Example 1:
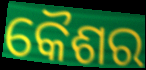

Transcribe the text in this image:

କୈଶର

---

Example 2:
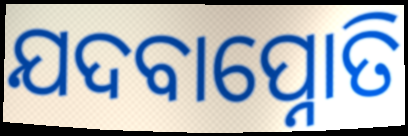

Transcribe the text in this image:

ଯଦବାପ୍ନୋତି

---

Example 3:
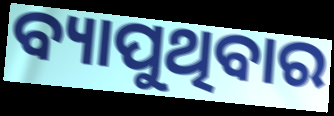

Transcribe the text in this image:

ବ୍ୟାପୁଥିବାର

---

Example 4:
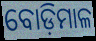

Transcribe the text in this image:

ବୋଡ଼ିମାଳ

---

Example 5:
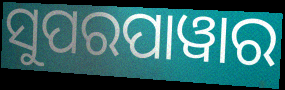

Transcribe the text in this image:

ସୁପରପାୱାର